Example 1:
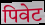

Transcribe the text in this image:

पिवेट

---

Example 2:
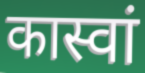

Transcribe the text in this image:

कास्वां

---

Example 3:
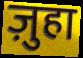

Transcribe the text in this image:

ज़ुहा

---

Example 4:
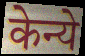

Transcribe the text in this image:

केन्ये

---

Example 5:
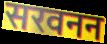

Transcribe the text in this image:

सरवनन